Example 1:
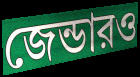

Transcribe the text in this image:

জেন্ডারও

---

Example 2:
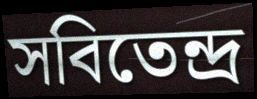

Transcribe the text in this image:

সবিতেন্দ্র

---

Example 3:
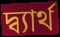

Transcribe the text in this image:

দ্ব্যার্থ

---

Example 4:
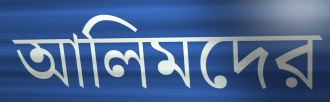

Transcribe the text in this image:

আলিমদের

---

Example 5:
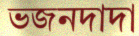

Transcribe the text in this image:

ভজনদাদা